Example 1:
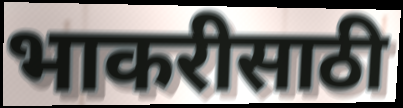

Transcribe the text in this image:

भाकरीसाठी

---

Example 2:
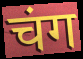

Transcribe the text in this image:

चंग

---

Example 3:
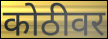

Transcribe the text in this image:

कोठीवर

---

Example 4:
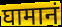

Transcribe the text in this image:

घामानं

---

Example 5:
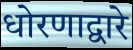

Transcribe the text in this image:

धोरणाद्वारे